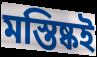
মস্তিষ্কই